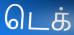
டெக்